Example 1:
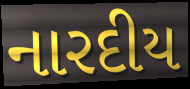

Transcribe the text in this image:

નારદીય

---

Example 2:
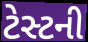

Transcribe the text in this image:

ટેસ્ટની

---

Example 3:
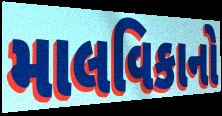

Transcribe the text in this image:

માલવિકાનો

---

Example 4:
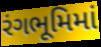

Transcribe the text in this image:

રંગભૂમિમાં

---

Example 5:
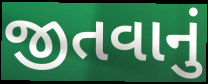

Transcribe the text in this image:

જીતવાનું